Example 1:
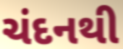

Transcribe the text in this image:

ચંદનથી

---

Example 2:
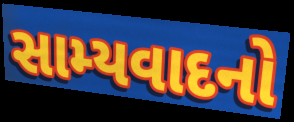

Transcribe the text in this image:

સામ્યવાદનો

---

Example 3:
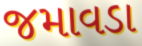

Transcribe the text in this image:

જમાવડા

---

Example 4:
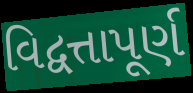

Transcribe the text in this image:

વિદ્વત્તાપૂર્ણ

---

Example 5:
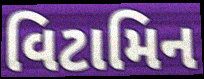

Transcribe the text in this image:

વિટામિન